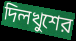
দিলখুশের